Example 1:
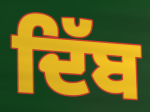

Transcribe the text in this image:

ਦਿੱਬ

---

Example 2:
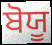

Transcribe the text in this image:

ਬੋਯੂ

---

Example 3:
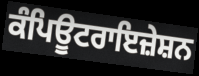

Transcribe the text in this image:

ਕੰਪਿਊਟਰਾਇਜ਼ੇਸ਼ਨ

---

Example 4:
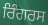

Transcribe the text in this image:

ਰਿੰਗਰਸ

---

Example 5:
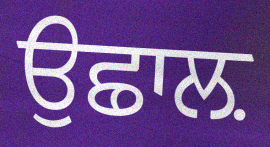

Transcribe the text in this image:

ਉਛਾਲ਼